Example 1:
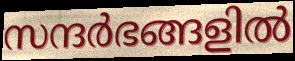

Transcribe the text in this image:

സന്ദർഭങ്ങളിൽ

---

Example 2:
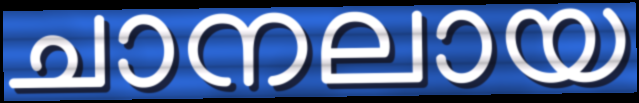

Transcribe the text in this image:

ചാനലായ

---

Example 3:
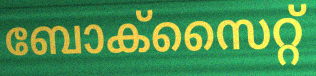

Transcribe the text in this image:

ബോക്സൈറ്റ്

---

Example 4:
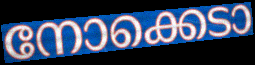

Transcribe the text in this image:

നോക്കെടാ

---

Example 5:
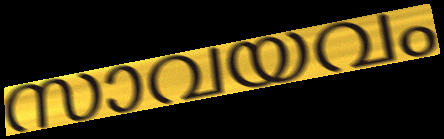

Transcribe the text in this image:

സാവയവം